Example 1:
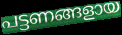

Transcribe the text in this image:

പട്ടണങ്ങളായ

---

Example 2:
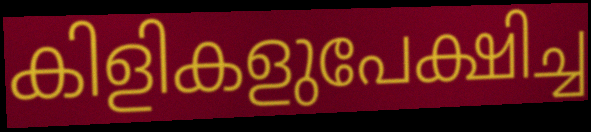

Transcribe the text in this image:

കിളികളുപേക്ഷിച്ച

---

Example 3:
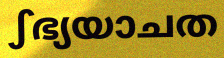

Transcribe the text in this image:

ഽഭ്യയാചത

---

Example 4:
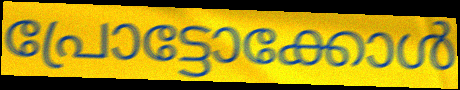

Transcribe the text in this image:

പ്രോട്ടോക്കോൾ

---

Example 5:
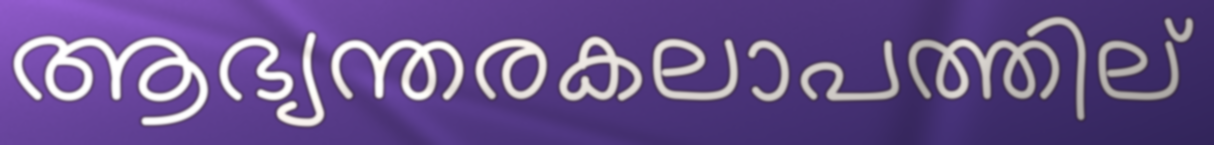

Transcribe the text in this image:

ആഭ്യന്തരകലാപത്തില്